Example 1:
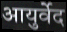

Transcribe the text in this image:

आयुर्वेद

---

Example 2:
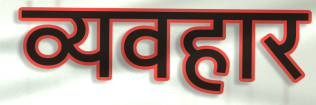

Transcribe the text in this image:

व्यवहार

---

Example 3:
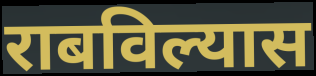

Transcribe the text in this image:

राबविल्यास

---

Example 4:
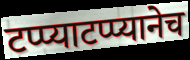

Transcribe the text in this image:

टप्प्याटप्प्यानेच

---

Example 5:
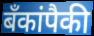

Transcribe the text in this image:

बँकांपैकी